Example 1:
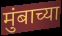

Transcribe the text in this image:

मुंबाच्या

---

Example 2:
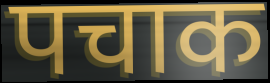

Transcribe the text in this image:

पचाक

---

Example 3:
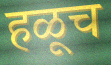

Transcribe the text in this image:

हळूच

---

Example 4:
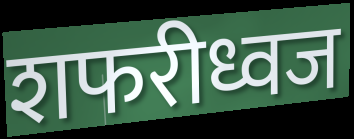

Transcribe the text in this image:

शफरीध्वज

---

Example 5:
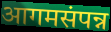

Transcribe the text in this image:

आगमसंपन्न